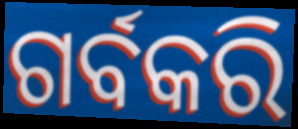
ଗର୍ବକରି